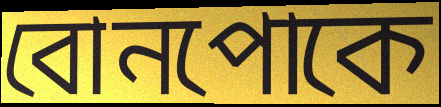
বোনপোকে